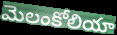
మెలంకోలియా